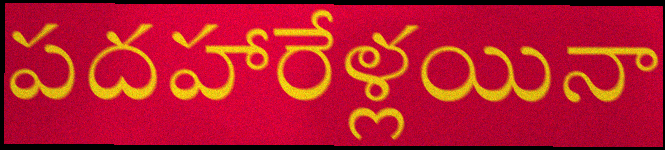
పదహారేళ్లయినా